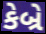
કેબ્રે